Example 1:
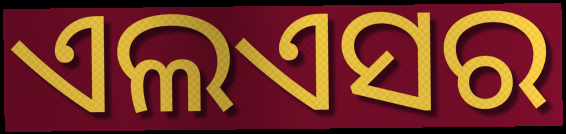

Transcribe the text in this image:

ଏଲଏସର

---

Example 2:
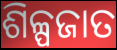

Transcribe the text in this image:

ଶିଳ୍ପଜାତ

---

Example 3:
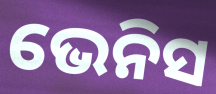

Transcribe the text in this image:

ଭେନିସ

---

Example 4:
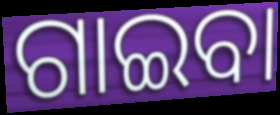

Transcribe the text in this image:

ଗାଇବା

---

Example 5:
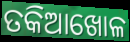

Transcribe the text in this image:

ତକିଆଖୋଳ